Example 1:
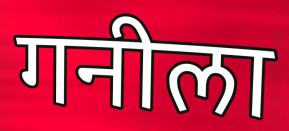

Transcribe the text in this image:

गनीला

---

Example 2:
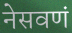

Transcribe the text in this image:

नेसवणं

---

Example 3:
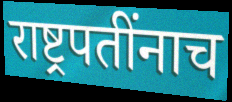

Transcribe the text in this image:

राष्ट्रपतींनाच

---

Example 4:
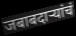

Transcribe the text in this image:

जबाबदार्‍यांचं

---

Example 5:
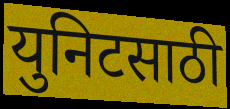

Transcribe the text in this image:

युनिटसाठी